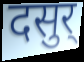
दसुर्